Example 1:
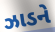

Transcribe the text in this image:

ઝાડને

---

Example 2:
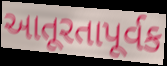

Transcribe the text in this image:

આતૂરતાપૂર્વક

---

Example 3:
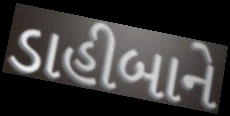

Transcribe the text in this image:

ડાહીબાને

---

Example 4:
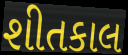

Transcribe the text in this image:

શીતકાલ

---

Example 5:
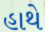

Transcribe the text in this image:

હાથે